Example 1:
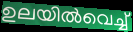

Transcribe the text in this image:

ഉലയിൽവെച്ച്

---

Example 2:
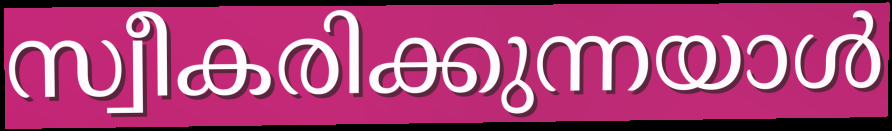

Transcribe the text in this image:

സ്വീകരിക്കുന്നയാൾ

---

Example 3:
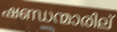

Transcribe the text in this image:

ഷണ്ഡന്മാരില്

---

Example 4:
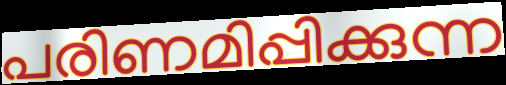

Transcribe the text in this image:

പരിണമിപ്പിക്കുന്ന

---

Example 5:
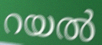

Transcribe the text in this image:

റയൽ